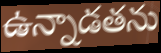
ఉన్నాడతను